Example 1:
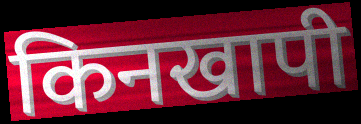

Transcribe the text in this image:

किनखापी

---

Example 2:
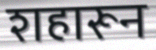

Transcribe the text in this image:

शहारून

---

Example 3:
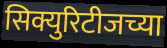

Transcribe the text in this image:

सिक्युरिटीजच्या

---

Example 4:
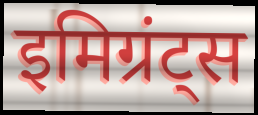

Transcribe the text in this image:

इमिग्रंट्स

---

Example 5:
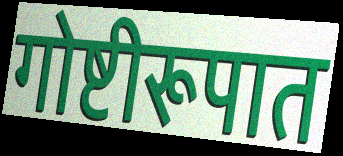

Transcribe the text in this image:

गोष्टीरूपात